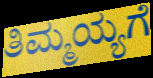
ತಿಮ್ಮಯ್ಯಗೆ